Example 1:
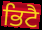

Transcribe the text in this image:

ਭਿਟੈ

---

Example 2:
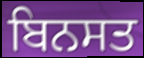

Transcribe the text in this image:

ਬਿਨਸਤ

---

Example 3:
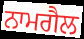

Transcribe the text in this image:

ਨਾਮਗੈਲ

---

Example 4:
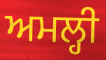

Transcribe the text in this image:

ਅਮਲ੍ਹੀ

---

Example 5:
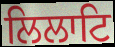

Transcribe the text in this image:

ਲਿਲਾਟਿ